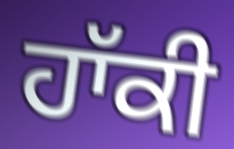
ਹਾੱਕੀ